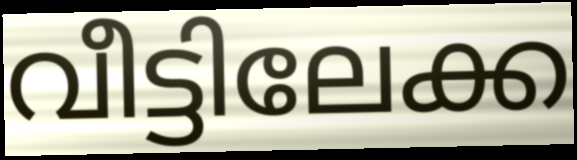
വീട്ടിലേക്ക